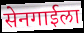
सेनगाईला